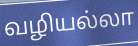
வழியல்லா